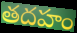
తదహం